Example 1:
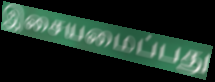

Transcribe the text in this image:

இசையமைப்பது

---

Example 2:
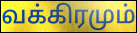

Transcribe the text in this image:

வக்கிரமும்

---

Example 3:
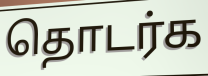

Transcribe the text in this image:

தொடர்க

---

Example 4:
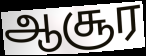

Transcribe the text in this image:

ஆசூர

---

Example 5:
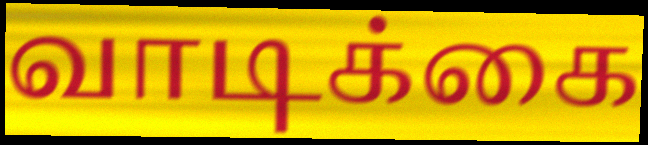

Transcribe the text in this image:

வாடிக்கை